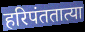
हरिपंततात्या